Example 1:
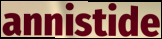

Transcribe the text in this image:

annistide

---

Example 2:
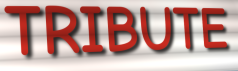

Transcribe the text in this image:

TRIBUTE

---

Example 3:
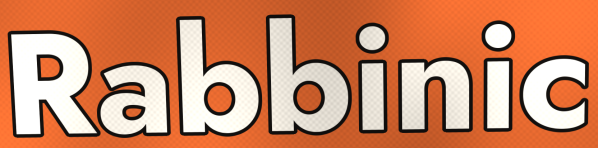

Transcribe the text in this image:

Rabbinic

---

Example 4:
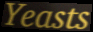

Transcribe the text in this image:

Yeasts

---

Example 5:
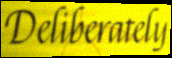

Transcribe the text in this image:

Deliberately